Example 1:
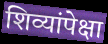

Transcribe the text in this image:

शिव्यांपेक्षा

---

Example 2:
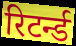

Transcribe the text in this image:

रिटर्न्ड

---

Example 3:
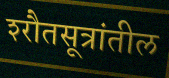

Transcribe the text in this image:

श्रौतसूत्रांतील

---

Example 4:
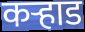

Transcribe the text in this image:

कऱ्हाड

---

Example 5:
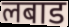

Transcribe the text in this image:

लबाड